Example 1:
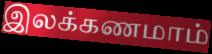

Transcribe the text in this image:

இலக்கணமாம்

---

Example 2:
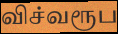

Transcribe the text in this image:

விச்வரூப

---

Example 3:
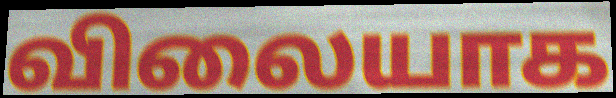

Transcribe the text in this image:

விலையாக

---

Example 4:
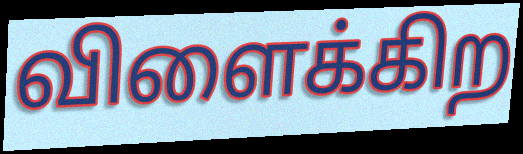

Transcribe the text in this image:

விளைக்கிற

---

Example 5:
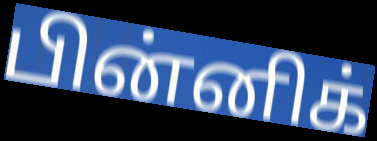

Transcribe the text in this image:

பின்னிக்